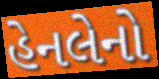
હેનલેનો